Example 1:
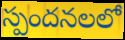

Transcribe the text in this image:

స్పందనలలో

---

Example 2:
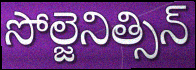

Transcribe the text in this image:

సోల్జెనిత్సిన్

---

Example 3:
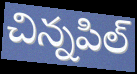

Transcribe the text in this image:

చిన్నపిల్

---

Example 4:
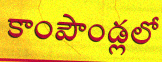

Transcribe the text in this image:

కాంపౌండ్లలో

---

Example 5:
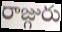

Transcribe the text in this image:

రాజ్గురు